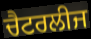
ਚੈਟਰਲੀਜ